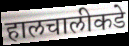
हालचालीकडे